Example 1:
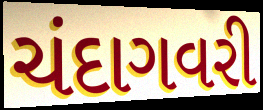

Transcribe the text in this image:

ચંદાગવરી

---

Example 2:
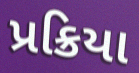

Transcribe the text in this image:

પ્રક્રિયા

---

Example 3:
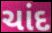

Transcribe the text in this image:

ચાંદ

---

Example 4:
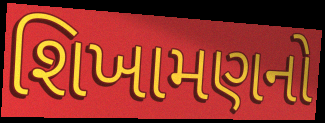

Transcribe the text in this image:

શિખામણનો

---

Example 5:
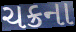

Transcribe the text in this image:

ચક્રના